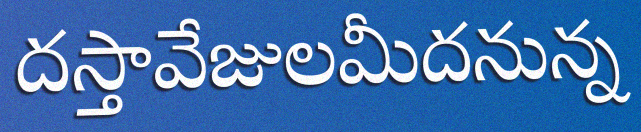
దస్తావేజులమీదనున్న